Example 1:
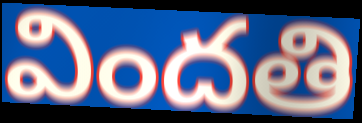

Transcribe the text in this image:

విందతి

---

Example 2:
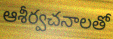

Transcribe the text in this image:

ఆశీర్వచనాలతో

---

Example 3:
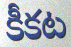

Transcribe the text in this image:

కీకట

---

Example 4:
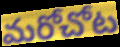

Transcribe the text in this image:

మరోచోట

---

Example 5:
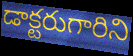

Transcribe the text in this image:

డాక్టరుగారిని